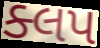
ક્લપ